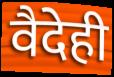
वैदेही